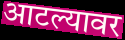
आटल्यावर